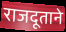
राजदूताने